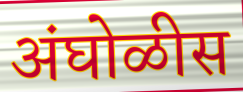
अंघोळीस